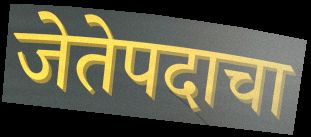
जेतेपदाचा